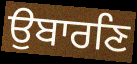
ਉਬਾਰਣਿ